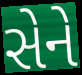
સેને